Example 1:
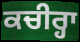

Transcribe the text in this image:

ਕਚੀਰ੍ਹਾ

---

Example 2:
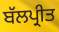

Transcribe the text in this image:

ਬੱਲਪ੍ਰੀਤ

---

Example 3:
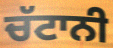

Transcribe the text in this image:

ਚੱਟਾਨੀ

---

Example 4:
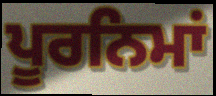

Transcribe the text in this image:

ਪੂਰਨਿਮਾਂ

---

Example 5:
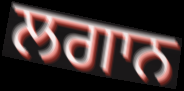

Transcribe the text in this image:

ਲਗਾਨ